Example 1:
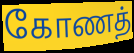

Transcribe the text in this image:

கோணத்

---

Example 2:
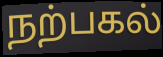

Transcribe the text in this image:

நற்பகல்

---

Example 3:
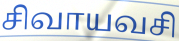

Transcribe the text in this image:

சிவாயவசி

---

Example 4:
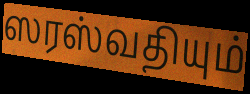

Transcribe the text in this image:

ஸரஸ்வதியும்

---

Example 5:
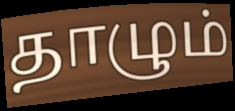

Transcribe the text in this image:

தாழும்